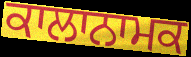
ਕਾਲਾਨਾਮਕ